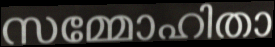
സമ്മോഹിതാ